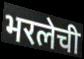
भरलेची